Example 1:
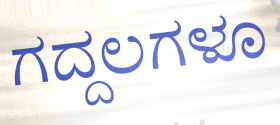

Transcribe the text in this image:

ಗದ್ದಲಗಳೂ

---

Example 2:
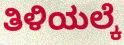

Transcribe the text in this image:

ತಿಳಿಯಲ್ಕೆ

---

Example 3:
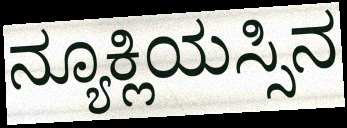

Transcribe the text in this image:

ನ್ಯೂಕ್ಲಿಯಸ್ಸಿನ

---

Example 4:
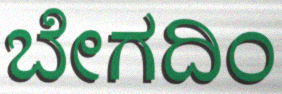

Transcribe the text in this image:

ಬೇಗದಿಂ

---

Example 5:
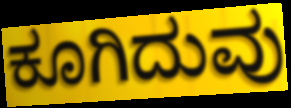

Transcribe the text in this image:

ಕೂಗಿದುವು